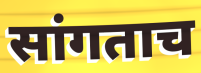
सांगताच